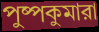
পুষ্পকুমারা